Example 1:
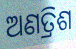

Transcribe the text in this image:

ଅଣତ୍ରିଶ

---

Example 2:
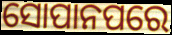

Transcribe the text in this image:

ସୋପାନପରେ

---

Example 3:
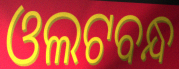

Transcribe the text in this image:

ଓଲଟବନ୍ଧ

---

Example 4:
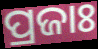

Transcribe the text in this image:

ପ୍ରଜାଃ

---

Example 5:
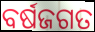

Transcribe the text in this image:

ବର୍ଷଜଗତ